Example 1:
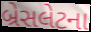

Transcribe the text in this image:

બ્રેસલેટના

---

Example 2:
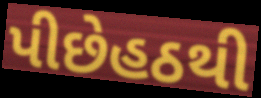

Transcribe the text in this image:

પીછેહઠથી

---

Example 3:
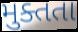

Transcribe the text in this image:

મુક્તતા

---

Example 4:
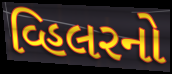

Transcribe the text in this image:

વ્હિલરનો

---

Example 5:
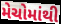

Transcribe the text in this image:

મેચોમાંથી